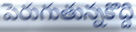
పెరుగుతున్నకొద్ది